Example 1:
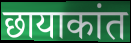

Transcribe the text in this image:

छायाकांत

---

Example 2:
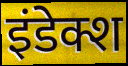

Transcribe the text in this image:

इंडेक्श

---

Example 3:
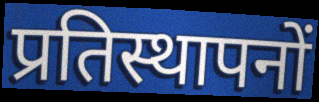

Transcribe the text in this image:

प्रतिस्थापनों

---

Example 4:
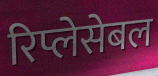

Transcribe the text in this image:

रिप्लेसेबल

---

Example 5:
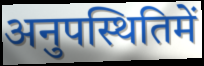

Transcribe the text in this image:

अनुपस्थितिमें